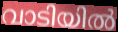
വാടിയിൽ